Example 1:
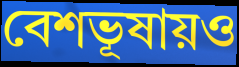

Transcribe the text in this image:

বেশভূষায়ও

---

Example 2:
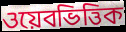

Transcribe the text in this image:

ওয়েবভিত্তিক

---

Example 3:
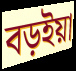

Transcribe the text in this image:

বড়ইয়া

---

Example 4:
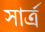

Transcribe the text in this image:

সার্ত্র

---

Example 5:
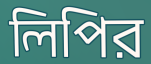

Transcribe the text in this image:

লিপির